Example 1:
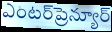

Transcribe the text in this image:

ఎంటర్‌ప్రెన్యూర్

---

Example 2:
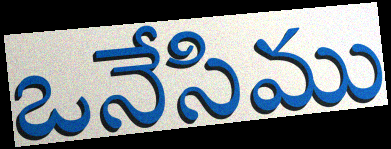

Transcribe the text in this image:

ఒనేసిము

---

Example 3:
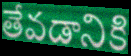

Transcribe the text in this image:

తేవడానికి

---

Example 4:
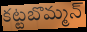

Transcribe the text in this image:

కట్టబొమ్మన్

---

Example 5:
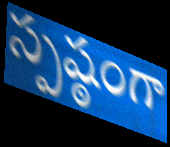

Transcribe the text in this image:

స్పష్ఠంగా